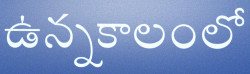
ఉన్నకాలంలో